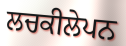
ਲਚਕੀਲੇਪਨ